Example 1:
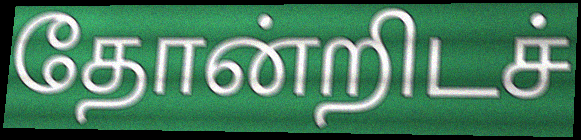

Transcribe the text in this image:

தோன்றிடச்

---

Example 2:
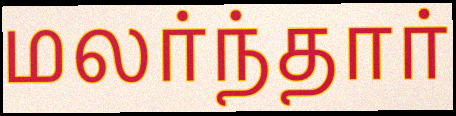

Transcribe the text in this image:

மலர்ந்தார்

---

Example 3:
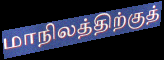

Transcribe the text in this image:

மாநிலத்திற்குத்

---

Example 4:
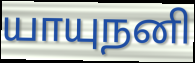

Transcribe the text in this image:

யாயுநனி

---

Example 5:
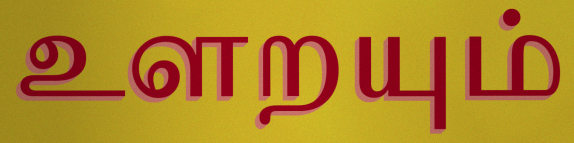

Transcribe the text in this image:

உளறயும்